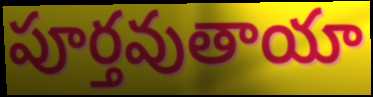
పూర్తవుతాయా